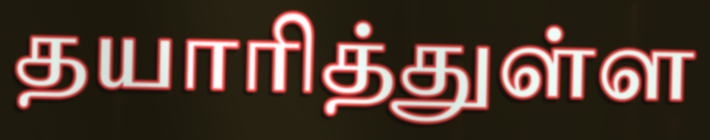
தயாரித்துள்ள